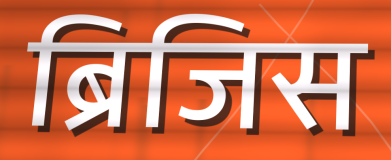
ब्रिजिस